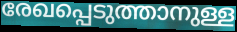
രേഖപ്പെടുത്താനുള്ള